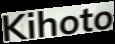
Kihoto